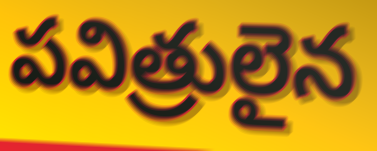
పవిత్రులైన